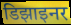
डिझाइनर